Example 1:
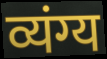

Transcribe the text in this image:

व्‍यंग्‍य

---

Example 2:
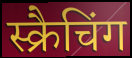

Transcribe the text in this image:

स्क्रैचिंग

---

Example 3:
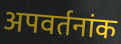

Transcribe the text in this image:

अपवर्तनांक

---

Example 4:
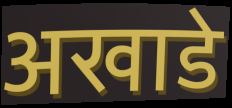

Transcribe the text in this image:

अखाडे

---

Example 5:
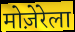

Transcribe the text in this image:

मोज़ेरेला